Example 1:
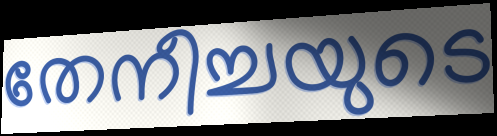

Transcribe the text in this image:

തേനീച്ചയുടെ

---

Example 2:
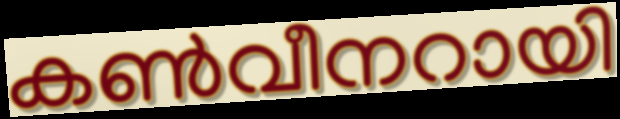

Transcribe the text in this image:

കൺവീനറായി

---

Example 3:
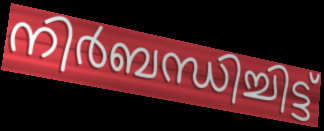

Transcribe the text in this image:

നിർബന്ധിച്ചിട്ട്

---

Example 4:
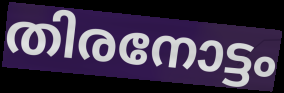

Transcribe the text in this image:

തിരനോട്ടം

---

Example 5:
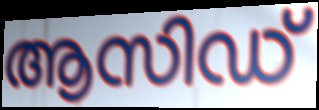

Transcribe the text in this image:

ആസിഡ്